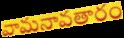
వామనావతారం